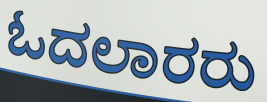
ಓದಲಾರರು